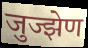
जुज्झेण